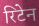
रिटेन